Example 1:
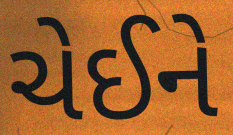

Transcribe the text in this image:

ચેઈને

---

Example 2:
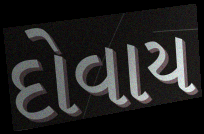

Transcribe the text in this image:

દોવાય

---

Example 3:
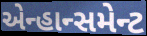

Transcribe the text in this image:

એન્હાન્સમેન્ટ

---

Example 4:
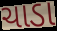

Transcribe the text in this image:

ચાડા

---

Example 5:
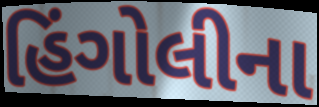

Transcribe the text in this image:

હિંગોલીના